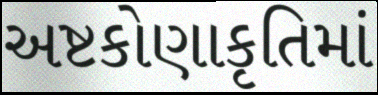
અષ્ટકોણાકૃતિમાં